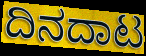
ದಿನದಾಟ